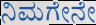
ನಿಮಗೇನೇ